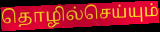
தொழில்செய்யும்